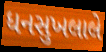
ધનસુખલાલે